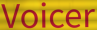
Voicer